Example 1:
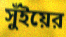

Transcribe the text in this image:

সুঁইয়ের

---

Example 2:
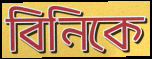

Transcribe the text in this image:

বিনিকে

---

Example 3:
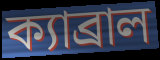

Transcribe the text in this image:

ক্যাব্রাল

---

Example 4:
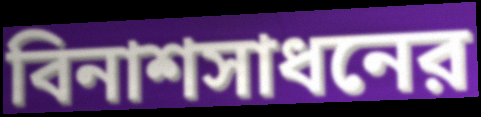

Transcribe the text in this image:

বিনাশসাধনের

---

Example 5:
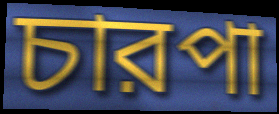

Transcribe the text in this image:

চারপা